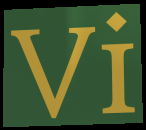
Vi